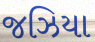
જઝિયા